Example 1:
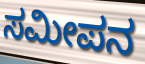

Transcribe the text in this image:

ಸಮೀಪನ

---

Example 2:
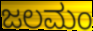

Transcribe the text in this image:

ಜಲಮಂ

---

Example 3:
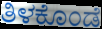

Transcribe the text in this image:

ತಿಳಕೊಂಡೆ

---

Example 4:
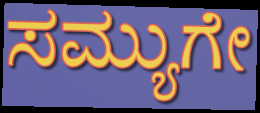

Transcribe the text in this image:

ಸಮ್ಯುಗೇ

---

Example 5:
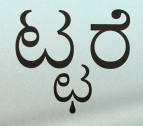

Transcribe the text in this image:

ಟ್ಟರೆ